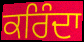
ਕਰਿੰਦਾ